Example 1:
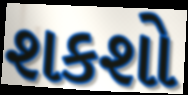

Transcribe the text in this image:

શકશો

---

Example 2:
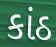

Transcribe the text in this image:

કાંઠ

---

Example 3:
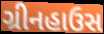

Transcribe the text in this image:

ગ્રીનહાઉસ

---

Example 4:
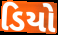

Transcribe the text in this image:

ડિયો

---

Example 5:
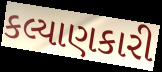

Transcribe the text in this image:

કલ્યાણકારી